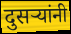
दुसर्‍यांनी